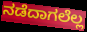
ನಡೆದಾಗಲೆಲ್ಲ